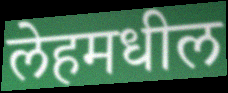
लेहमधील